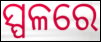
ସ୍ପଳରେ